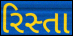
રિસ્તા